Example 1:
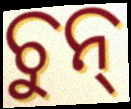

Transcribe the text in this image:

ଚୁନ୍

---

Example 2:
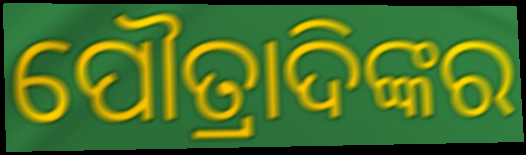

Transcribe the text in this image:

ପୌତ୍ରାଦିଙ୍କର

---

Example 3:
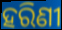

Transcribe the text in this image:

ହରିଣୀ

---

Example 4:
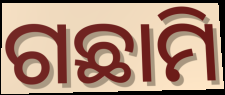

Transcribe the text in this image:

ଗଛାମି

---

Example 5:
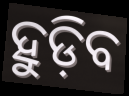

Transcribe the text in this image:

ହୁଡ଼ିବ